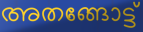
അതങ്ങോട്ട്